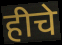
हीचे